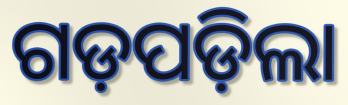
ଗଡ଼ପଡ଼ିଲା